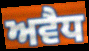
ਅਵੈਧ